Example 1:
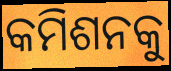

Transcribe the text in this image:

କମିଶନକୁ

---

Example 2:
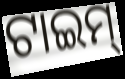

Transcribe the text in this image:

ଟାଇମ୍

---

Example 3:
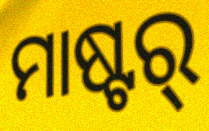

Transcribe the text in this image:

ମାଷ୍ଟର୍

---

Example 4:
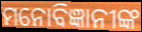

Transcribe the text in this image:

ମନୋବିଜ୍ଞାନୀଙ୍କ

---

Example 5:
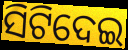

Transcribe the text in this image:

ସିଟିଦେଇ